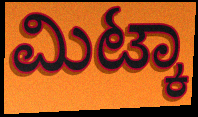
ಮಿಟ್ಕಾ